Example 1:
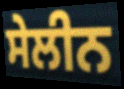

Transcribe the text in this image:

ਸੇਲੀਨ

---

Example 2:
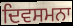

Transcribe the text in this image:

ਦਿਵਸਮਨਾ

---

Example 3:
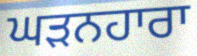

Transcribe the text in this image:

ਘੜਨਹਾਰਾ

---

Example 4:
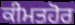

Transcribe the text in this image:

ਕੀਮਤਹੋਰ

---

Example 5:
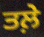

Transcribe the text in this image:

ਤਲ਼ੇ